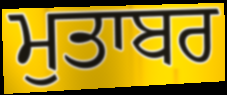
ਮੁਤਾਬਰ